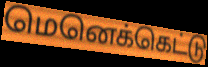
மெனெக்கெட்டு